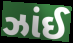
ઝાંઈ